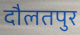
दौलतपुर